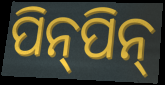
ପିନ୍‍ପିନ୍